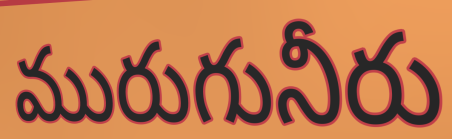
మురుగునీరు